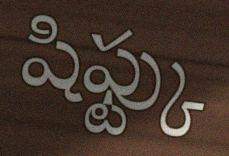
షిఫ్ట్కు